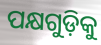
ପକ୍ଷଗୁଡ଼ିକୁ